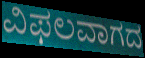
ವಿಫಲವಾಗದ